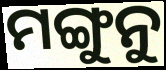
ମଙ୍ଗୁନୁ